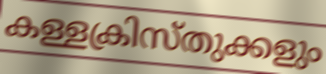
കള്ളക്രിസ്തുക്കളും